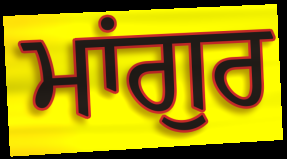
ਮਾਂਗੁਰ